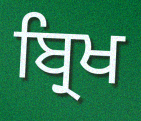
ਬ੍ਰਿਖ